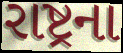
રાષ્ટ્રના